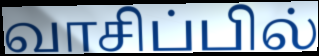
வாசிப்பில்